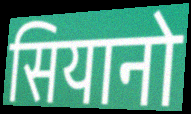
सियानो